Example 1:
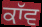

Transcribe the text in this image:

ਕਾੱਵ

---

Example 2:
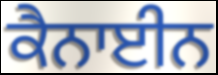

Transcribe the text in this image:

ਕੈਨਾਈਨ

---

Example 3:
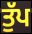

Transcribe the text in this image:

ਤੁੱਪ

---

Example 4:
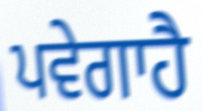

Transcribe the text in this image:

ਪਵੇਗਾਹੈ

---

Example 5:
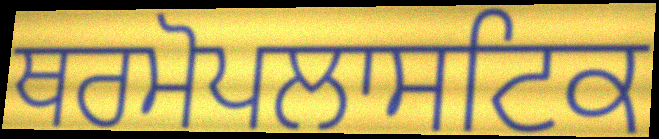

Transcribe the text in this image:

ਥਰਮੋਪਲਾਸਟਿਕ